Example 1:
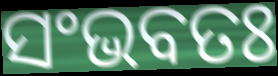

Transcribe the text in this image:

ସଂଭବତଃ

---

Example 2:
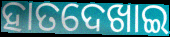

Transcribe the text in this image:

ହାତଦେଖାଇ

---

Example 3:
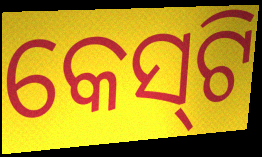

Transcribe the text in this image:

କେସ୍‌ଟି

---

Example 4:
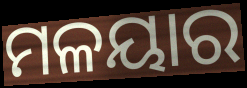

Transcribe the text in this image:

ମଳୟାର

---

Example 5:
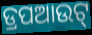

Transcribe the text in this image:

ଡ୍ରପଆଉଟ୍